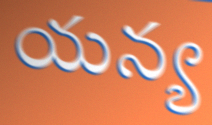
యన్య